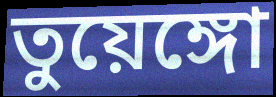
তুয়েঙ্গো